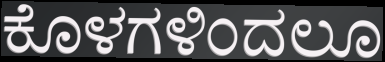
ಕೊಳಗಳಿಂದಲೂ